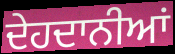
ਦੇਹਦਾਨੀਆਂ